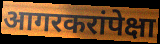
आगरकरांपेक्षा